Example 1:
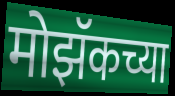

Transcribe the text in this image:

मोझॅकच्या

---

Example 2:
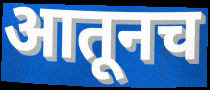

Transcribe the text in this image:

आतूनच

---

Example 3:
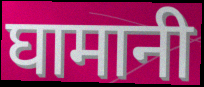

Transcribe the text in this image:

घामानी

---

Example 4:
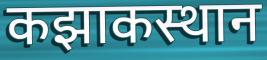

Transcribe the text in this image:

कझाकस्थान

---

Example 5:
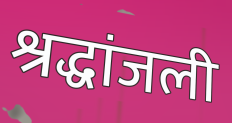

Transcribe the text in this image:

श्रद्धांजली